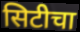
सिटीचा